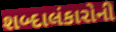
શબ્દાલંકારોની